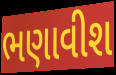
ભણાવીશ